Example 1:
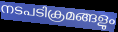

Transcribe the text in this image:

നടപടിക്രമങ്ങളും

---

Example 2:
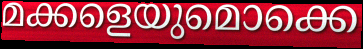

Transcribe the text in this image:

മക്കളെയുമൊക്കെ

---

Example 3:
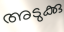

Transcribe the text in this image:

അടുക്കു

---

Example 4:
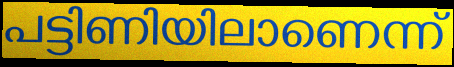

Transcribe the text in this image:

പട്ടിണിയിലാണെന്ന്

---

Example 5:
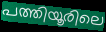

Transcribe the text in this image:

പത്തിയൂരിലെ